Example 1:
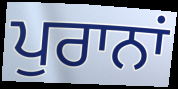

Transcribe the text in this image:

ਪੁਰਾਨਾਂ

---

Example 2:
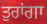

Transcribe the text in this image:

ਤੁਰਾਂਗਾ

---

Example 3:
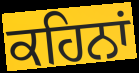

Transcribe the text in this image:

ਕਹਿਨਾਂ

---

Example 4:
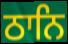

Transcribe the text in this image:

ਠਾਨਿ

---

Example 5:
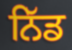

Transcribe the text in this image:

ਨਿੱਡ